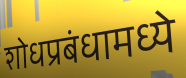
शोधप्रबंधामध्ये